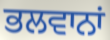
ਭਲਵਾਨਾਂ